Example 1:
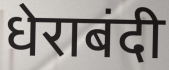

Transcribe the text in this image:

धेराबंदी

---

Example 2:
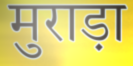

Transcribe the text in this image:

मुराड़ा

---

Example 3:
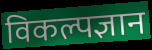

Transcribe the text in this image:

विकल्पज्ञान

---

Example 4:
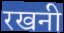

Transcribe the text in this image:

रखनी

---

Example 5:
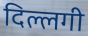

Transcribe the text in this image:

दिल्‍लगी